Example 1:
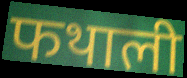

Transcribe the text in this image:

फथाली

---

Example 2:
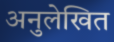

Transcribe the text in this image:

अनुलेखित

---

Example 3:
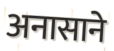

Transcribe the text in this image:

अनासाने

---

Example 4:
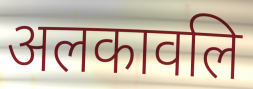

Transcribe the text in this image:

अलकावलि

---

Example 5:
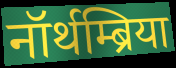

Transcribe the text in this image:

नॉर्थम्ब्रिया